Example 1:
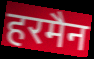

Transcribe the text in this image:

हरमैन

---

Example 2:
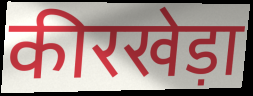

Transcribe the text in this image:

कीरखेड़ा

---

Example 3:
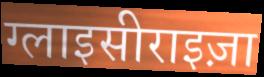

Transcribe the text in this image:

ग्लाइसीराइज़ा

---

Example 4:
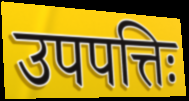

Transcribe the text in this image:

उपपत्तिः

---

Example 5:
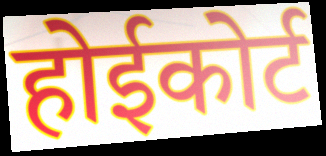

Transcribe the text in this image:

होईकोर्ट